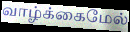
வாழ்க்கைமேல்